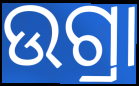
ଉଗ୍ରା